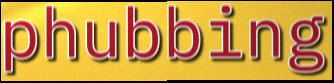
phubbing